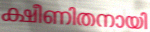
ക്ഷീണിതനായി